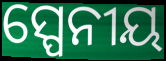
ସ୍ପେନୀୟ